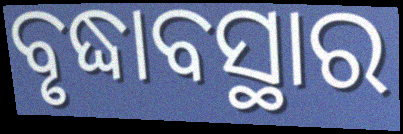
ବୃଦ୍ଧାବସ୍ଥାର